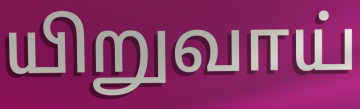
யிறுவாய்